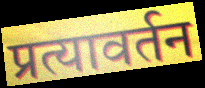
प्रत्‍यावर्तन